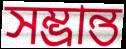
সম্ভ্ৰান্ত